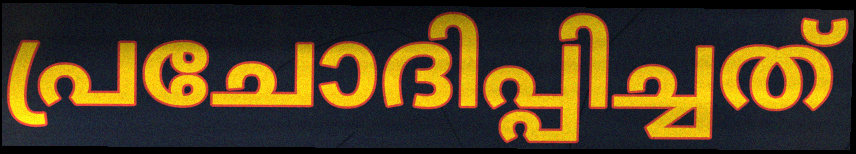
പ്രചോദിപ്പിച്ചത്